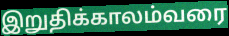
இறுதிக்காலம்வரை